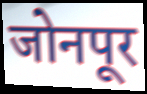
जोनपूर